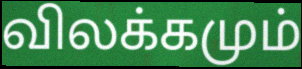
விலக்கமும்